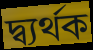
দ্ব্যর্থক